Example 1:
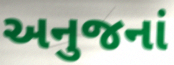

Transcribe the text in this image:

અનુજનાં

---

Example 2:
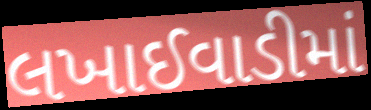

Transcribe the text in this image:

લખાઈવાડીમાં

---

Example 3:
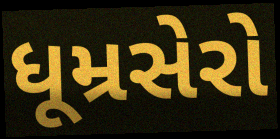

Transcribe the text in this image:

ધૂમ્રસેરો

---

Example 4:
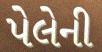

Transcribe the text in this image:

પેલેની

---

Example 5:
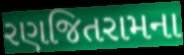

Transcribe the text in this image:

રણજિતરામના